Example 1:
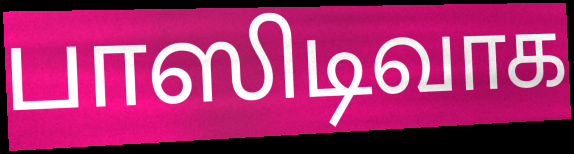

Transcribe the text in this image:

பாஸிடிவாக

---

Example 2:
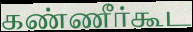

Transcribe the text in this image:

கண்ணீர்கூட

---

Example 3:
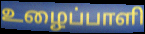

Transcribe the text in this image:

உழைப்பாளி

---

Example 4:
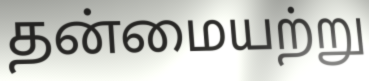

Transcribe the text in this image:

தன்மையற்று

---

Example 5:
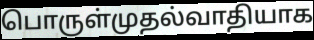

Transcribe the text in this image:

பொருள்முதல்வாதியாக